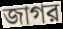
জাগর